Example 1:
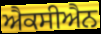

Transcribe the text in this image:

ਐਕਸੀਐਨ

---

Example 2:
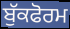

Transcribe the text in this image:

ਬੁੱਕਫੋਰਮ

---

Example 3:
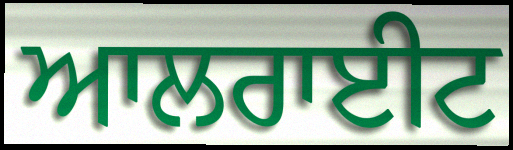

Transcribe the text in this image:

ਆਲਰਾਈਟ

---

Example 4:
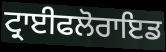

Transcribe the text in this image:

ਟ੍ਰਾਈਫਲੋਰਾਇਡ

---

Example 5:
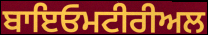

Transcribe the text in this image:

ਬਾਇਓਮਟੀਰੀਅਲ